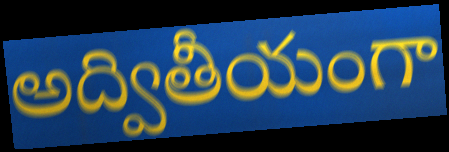
అద్వితీయంగా